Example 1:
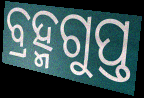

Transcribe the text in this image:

ବ୍ରହ୍ମଗୁପ୍ତ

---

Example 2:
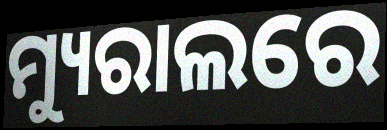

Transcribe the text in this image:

ମ୍ୟୁରାଲରେ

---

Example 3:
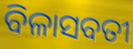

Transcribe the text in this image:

ବିଳାସବତୀ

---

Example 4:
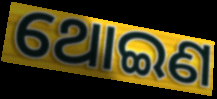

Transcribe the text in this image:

ଥୋଇଣ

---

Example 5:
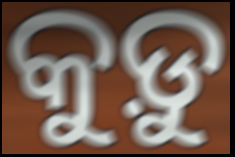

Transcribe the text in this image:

କୁଡ଼ୁ